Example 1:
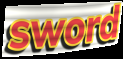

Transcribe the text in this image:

sword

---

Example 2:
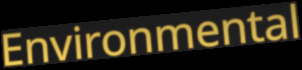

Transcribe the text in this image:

Environmental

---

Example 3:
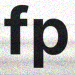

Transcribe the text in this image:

fp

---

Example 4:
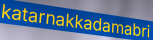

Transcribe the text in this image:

katarnakkadamabri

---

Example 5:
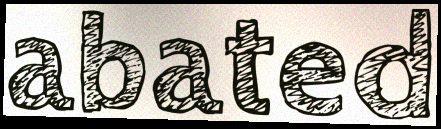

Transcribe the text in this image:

abated